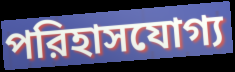
পরিহাসযোগ্য